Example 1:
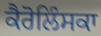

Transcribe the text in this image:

ਕੈਰੋਲਿੰਸਕਾ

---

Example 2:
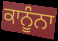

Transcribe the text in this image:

ਕਾਨੂੰਨਾ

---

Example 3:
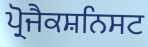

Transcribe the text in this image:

ਪ੍ਰੋਜੈਕਸ਼ਨਿਸਟ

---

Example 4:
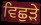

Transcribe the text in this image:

ਵਿਛੁੜੇ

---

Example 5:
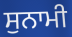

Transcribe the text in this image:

ਸੁਨਾਮੀ